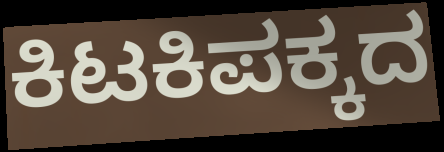
ಕಿಟಕಿಪಕ್ಕದ